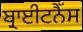
ਬ੍ਰਾਈਟਨੈੱਸ